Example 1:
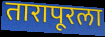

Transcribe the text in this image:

तारापूरला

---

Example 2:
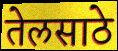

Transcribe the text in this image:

तेलसाठे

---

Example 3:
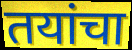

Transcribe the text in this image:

तयांचा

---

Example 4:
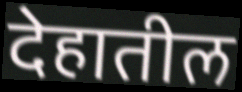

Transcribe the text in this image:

देहातील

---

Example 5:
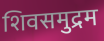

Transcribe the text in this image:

शिवसमुद्रम